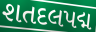
શતદલપદ્મ